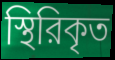
স্থিরিকৃত